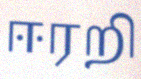
ஈரறி